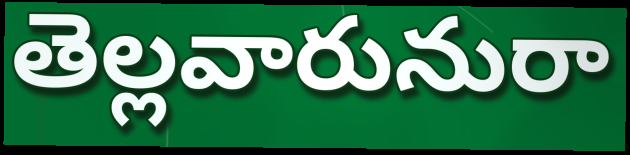
తెల్లవారునురా